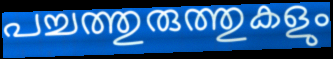
പച്ചത്തുരുത്തുകളും